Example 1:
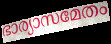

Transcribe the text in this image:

ഭാര്യാസമേതം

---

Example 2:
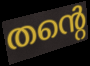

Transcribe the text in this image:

തന്റെ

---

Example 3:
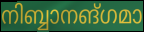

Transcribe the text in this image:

നിബ്ബാനങ്ഗമാ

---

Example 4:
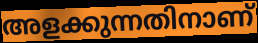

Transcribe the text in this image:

അളക്കുന്നതിനാണ്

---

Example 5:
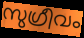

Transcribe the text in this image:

സുഗ്രീവം